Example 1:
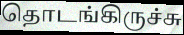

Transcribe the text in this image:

தொடங்கிருச்சு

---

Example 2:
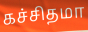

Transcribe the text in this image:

கச்சிதமா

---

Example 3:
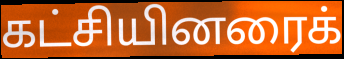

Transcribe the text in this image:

கட்சியினரைக்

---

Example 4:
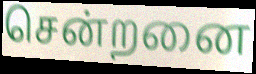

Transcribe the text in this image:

சென்றனை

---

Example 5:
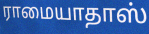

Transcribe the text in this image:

ராமையாதாஸ்